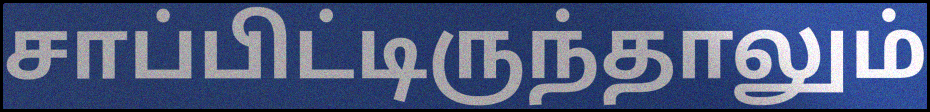
சாப்பிட்டிருந்தாலும்